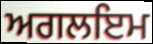
ਅਗਲਇਮ